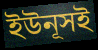
ইউনূসই